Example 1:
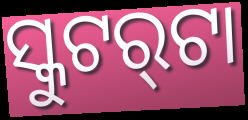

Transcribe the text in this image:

ସ୍କୁଟର୍‌ଟା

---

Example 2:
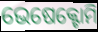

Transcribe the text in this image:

ଭେଷେକ୍ଟୋମି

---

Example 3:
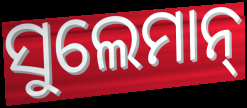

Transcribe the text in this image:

ସୁଲେମାନ୍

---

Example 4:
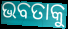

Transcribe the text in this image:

ଭବତାକୁ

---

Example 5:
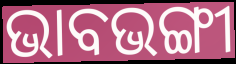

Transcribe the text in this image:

ଭାବଭଙ୍ଗୀ